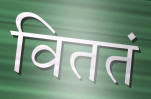
विततं